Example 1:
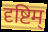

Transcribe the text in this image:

दृष्टिम्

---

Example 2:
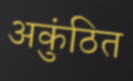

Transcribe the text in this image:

अकुंठित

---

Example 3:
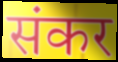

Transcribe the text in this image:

संकर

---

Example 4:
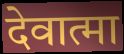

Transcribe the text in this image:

देवात्मा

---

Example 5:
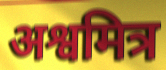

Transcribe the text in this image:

अश्वमित्र